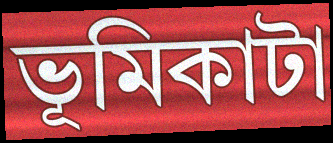
ভূমিকাটা